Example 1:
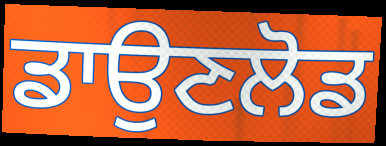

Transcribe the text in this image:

ਡਾਉਣਲੋਡ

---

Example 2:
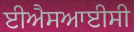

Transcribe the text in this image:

ਈਐਸਆਈਸੀ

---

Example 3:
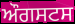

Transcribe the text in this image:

ਔਗਸਟਸ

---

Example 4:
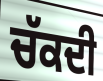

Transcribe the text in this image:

ਚੱਕਦੀ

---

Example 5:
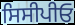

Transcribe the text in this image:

ਸਿਸੀਪੀਓ